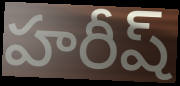
హరీష్